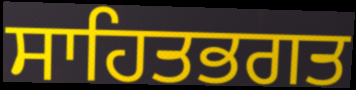
ਸਾਹਿਤਭਗਤ